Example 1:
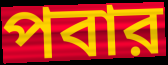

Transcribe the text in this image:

পবার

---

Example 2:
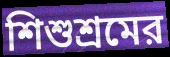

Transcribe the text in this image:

শিশুশ্রমের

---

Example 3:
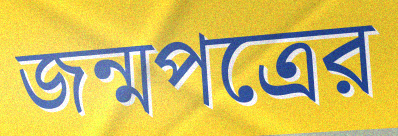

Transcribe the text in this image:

জন্মপত্রের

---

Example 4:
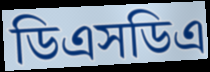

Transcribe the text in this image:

ডিএসডিএ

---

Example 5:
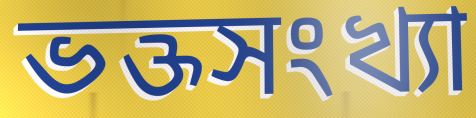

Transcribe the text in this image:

ভক্তসংখ্যা